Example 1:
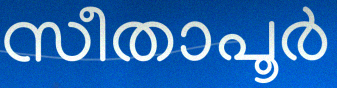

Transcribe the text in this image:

സീതാപൂർ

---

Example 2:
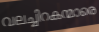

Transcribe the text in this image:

വലച്ചിറകന്മാരെ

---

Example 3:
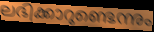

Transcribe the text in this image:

ലഭിക്കാറുണ്ടെന്നും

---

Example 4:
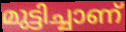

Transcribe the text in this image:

മുട്ടിച്ചാണ്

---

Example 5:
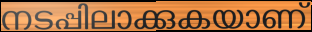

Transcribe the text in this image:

നടപ്പിലാക്കുകയാണ്